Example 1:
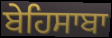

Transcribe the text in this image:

ਬੇਹਿਸਾਬਾ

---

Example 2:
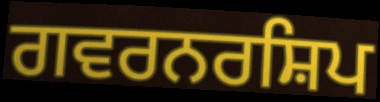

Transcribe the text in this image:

ਗਵਰਨਰਸ਼ਿਪ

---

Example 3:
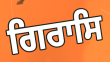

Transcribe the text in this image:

ਗਿਰਾਸਿ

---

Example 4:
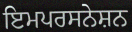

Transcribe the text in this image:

ਇਮਪਰਸਨੇਸ਼ਨ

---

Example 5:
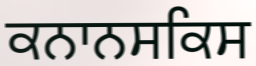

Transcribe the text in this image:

ਕਨਾਨਸਕਿਸ